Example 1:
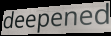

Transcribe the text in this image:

deepened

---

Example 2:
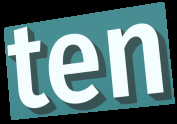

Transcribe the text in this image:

ten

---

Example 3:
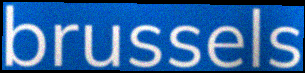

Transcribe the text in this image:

brussels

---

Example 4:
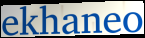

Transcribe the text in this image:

ekhaneo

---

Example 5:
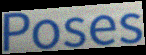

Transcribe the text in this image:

Poses